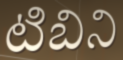
టిబిని